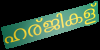
ഹര്ജികള്